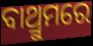
ବାଥ୍ରୁମରେ